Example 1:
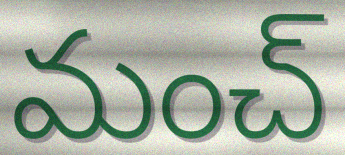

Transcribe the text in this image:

మంచ్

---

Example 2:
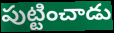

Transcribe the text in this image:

పుట్టించాడు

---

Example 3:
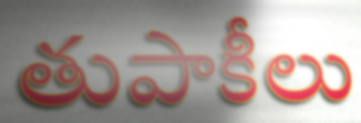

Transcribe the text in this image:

తుపాకీలు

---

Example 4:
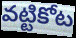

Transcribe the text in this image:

వట్టికోట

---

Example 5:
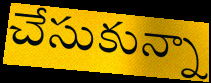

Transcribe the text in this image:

చేసుకున్నా